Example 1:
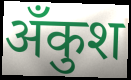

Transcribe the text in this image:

अँकुश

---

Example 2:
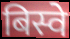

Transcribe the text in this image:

बिस्वे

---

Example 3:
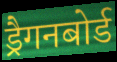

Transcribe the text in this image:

ड्रैगनबोर्ड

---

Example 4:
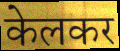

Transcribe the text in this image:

केलकर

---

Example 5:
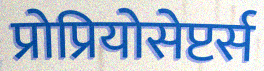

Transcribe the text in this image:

प्रोप्रियोसेप्टर्स